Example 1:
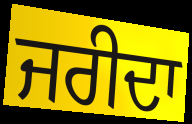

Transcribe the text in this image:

ਜਰੀਦਾ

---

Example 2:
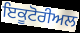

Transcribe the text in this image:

ਇਕੂਟੋਰੀਅਲ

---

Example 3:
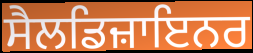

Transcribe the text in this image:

ਸੈਲਡਿਜ਼ਾਇਨਰ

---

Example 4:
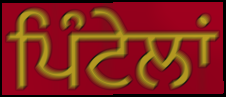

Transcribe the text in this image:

ਪਿੰਟੇਲਾਂ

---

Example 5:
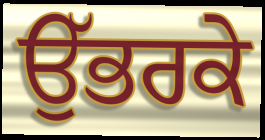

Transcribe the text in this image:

ਉੱਭਰਕੇ